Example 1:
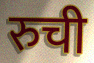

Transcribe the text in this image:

रुची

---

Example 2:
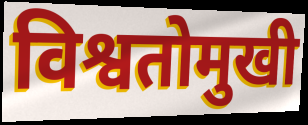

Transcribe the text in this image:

विश्वतोमुखी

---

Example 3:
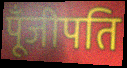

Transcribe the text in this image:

पूँजीपति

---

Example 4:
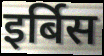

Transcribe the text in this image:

इर्बिस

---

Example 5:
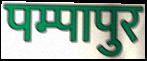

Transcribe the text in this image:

पम्पापुर